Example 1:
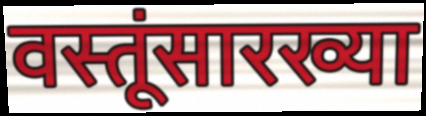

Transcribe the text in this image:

वस्तूंसारख्या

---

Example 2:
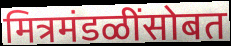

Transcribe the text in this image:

मित्रमंडळींसोबत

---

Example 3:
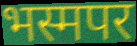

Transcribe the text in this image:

भस्मपर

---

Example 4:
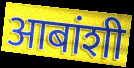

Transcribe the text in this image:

आबांशी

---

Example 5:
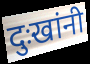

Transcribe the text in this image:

दुःखांनी